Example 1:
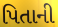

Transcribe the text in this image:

પિતાની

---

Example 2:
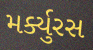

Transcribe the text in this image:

મર્ક્યુરસ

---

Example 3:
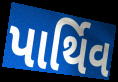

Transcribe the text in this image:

પાર્થિવ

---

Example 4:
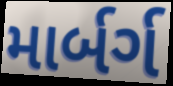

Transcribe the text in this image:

માર્બર્ગ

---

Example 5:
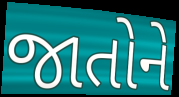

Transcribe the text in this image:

જાતોને